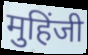
मुहिंजी